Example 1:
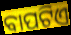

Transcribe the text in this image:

ବାପଟିଏ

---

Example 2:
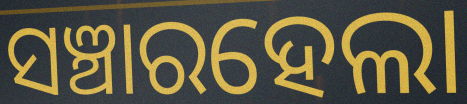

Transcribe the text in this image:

ସଞ୍ଚାରହେଲା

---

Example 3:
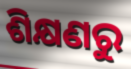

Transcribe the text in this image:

ଶିକ୍ଷଣରୁ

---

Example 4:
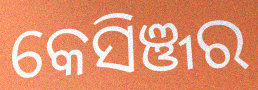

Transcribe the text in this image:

କେସିଞ୍ଜର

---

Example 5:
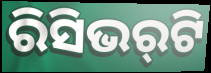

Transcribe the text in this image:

ରିସିଭର୍‌ଟି